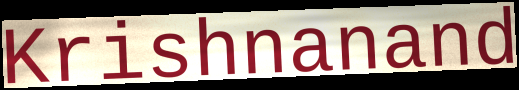
Krishnanand